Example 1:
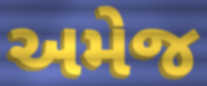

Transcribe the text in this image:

અમેજ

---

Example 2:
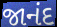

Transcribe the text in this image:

જાનંદ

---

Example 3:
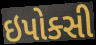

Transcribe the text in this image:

ઇપોક્સી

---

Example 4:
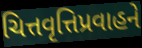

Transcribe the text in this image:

ચિત્તવૃત્તિપ્રવાહને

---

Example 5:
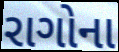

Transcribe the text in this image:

રાગોના